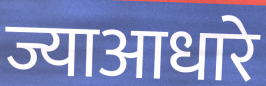
ज्याआधारे